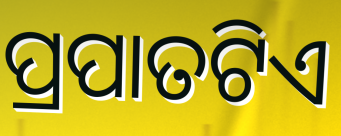
ପ୍ରପାତଟିଏ